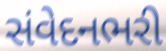
સંવેદનભરી